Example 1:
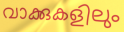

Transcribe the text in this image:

വാക്കുകളിലും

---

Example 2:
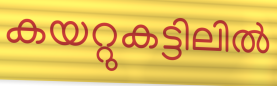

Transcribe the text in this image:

കയറ്റുകട്ടിലിൽ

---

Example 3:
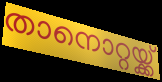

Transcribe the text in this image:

താനൊറ്റയ്ക്ക്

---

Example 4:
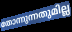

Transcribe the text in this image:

തോന്നുന്നതുമില്ല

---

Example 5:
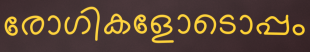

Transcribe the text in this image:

രോഗികളോടൊപ്പം